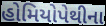
હોમિયોપેથીના